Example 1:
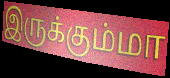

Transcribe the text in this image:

இருக்கும்மா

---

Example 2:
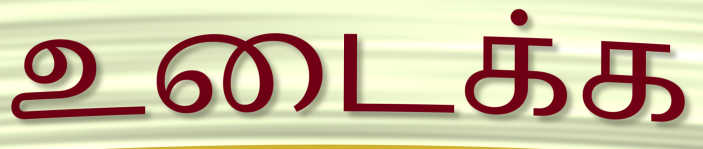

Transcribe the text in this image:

உடைக்க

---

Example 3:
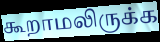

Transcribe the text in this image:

கூறாமலிருக்க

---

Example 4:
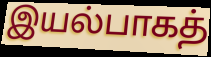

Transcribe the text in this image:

இயல்பாகத்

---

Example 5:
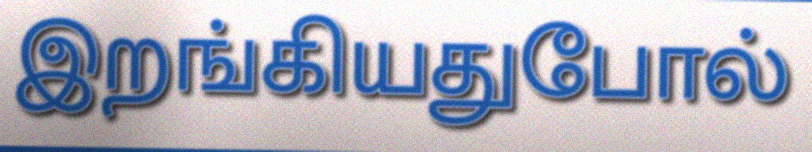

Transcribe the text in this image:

இறங்கியதுபோல்